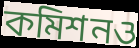
কমিশনও